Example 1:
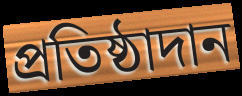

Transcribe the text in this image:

প্রতিষ্ঠাদান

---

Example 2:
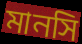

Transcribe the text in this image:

মানসি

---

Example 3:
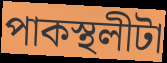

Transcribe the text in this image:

পাকস্থলীটা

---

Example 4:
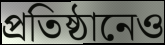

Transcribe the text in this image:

প্রতিষ্ঠানেও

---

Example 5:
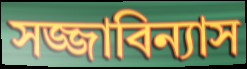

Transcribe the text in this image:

সজ্জাবিন্যাস